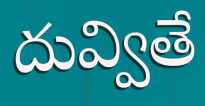
దువ్వితే